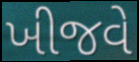
ખીજવે